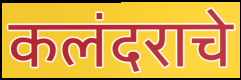
कलंदराचे